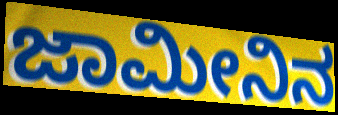
ಜಾಮೀನಿನ